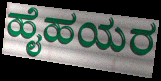
ಹೈಹಯರ